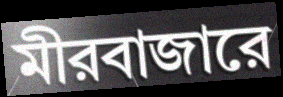
মীরবাজারে